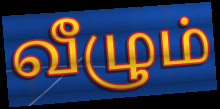
வீழும்